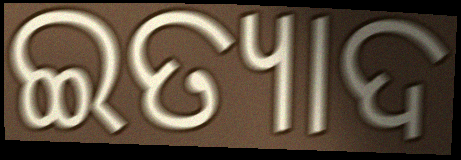
ଇତ୍ୟାଦ